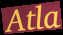
Atla